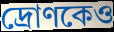
দ্রোণকেও